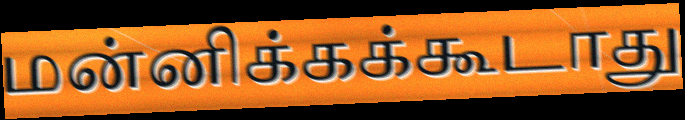
மன்னிக்கக்கூடாது